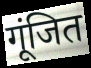
गूंजित